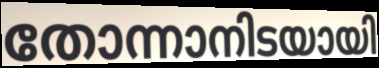
തോന്നാനിടയായി